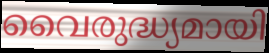
വൈരുദ്ധ്യമായി